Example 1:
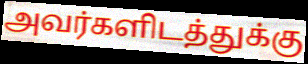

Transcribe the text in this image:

அவர்களிடத்துக்கு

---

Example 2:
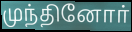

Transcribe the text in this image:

முந்தினோர்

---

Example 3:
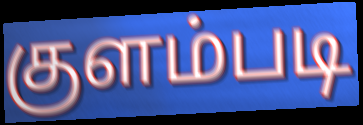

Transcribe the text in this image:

குளம்படி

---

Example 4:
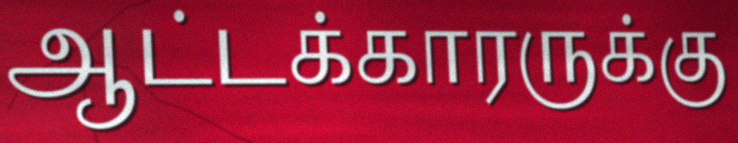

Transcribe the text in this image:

ஆட்டக்காரருக்கு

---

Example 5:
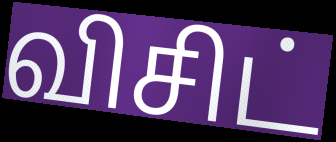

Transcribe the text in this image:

விசிட்